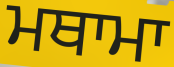
ਮਥਾਮਾ